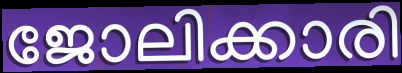
ജോലിക്കാരി